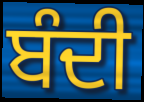
ਬੰਦੀ